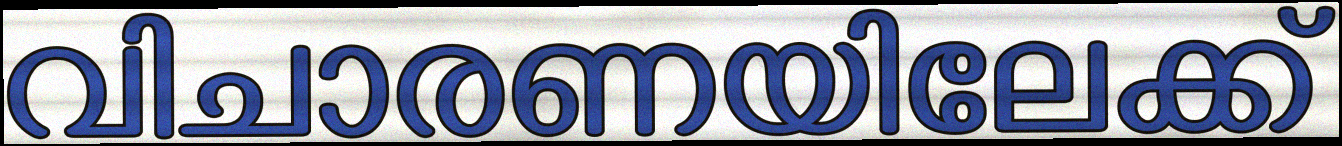
വിചാരണയിലേക്ക്